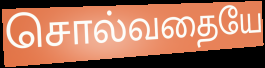
சொல்வதையே